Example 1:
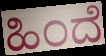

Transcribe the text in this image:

ಹಿಂದೆ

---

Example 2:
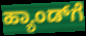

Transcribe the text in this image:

ಹ್ಯಾಂಡ್‌ಗೆ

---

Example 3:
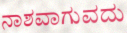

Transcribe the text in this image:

ನಾಶವಾಗುವದು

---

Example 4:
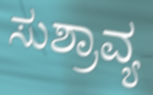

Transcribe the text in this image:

ಸುಶ್ರಾವ್ಯ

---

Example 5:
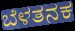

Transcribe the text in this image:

ಬೆಳತನಕ